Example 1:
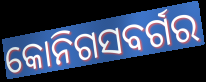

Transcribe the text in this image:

କୋନିଗସବର୍ଗର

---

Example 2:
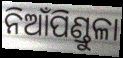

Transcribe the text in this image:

ନିଆଁପିଣ୍ଡୁଳା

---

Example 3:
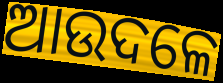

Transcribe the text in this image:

ଆଉଦଳେ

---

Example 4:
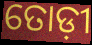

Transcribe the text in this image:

ତୋଡ଼ୀ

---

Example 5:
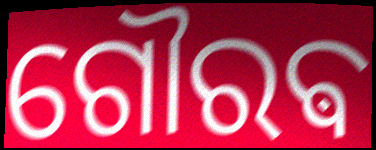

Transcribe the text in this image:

ଗୌରଵ